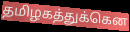
தமிழகத்துக்கென